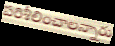
పరిశీలించాలన్నారు